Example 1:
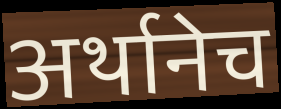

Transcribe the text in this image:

अर्थानेच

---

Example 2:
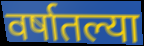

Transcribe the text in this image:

वर्षातल्या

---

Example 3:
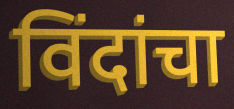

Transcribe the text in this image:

विंदांचा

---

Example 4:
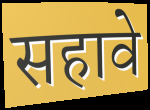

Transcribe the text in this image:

सहावे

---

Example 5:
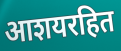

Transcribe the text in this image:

आशयरहित